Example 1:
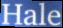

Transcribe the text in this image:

Hale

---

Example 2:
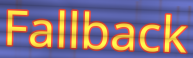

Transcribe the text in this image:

Fallback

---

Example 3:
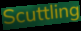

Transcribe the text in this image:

Scuttling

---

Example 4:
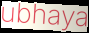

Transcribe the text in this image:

ubhaya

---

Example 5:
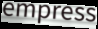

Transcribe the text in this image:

empress